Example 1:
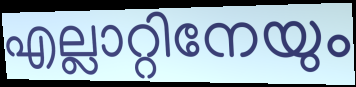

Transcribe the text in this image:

എല്ലാറ്റിനേയും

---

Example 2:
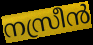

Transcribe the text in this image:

നസ്രീൻ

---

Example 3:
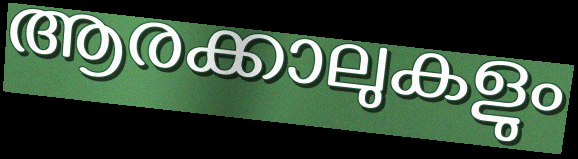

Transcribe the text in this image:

ആരക്കാലുകളും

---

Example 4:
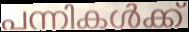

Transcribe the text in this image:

പന്നികൾക്ക്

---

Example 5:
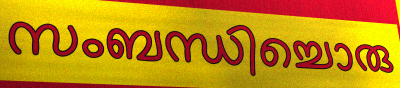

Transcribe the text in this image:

സംബന്ധിച്ചൊരു